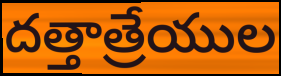
దత్తాత్రేయుల